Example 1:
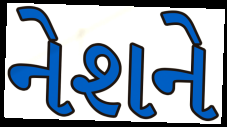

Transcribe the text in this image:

નેશને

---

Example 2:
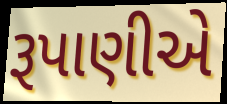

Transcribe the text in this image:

રૂપાણીએ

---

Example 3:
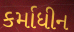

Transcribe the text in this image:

કર્માધીન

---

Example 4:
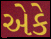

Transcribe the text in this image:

એકે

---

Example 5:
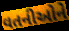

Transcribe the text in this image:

વતનીઓને